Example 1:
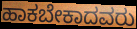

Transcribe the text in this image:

ಹಾಕಬೇಕಾದವರು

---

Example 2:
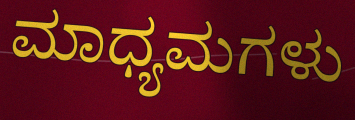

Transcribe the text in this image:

ಮಾಧ್ಯಮಗಳು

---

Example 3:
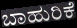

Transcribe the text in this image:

ಬಾಹುರಿಕೆ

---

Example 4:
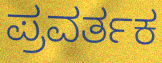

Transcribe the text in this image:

ಪ್ರವರ್ತಕ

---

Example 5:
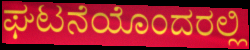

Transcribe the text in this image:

ಘಟನೆಯೊಂದರಲ್ಲಿ